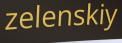
zelenskiy